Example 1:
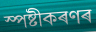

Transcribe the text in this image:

স্পষ্টীকৰণৰ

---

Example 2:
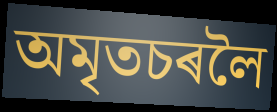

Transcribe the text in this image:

অমৃতচৰলৈ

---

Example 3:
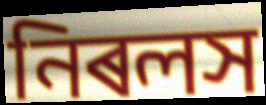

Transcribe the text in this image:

নিৰলস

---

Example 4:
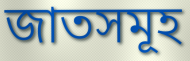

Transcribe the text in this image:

জাতসমূহ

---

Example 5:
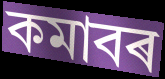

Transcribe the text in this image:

কমাবৰ